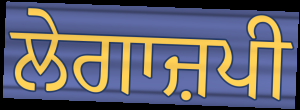
ਲੇਗਾਜ਼ਪੀ